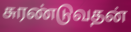
சுரண்டுவதன்